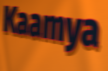
Kaamya